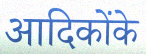
आदिकोंके